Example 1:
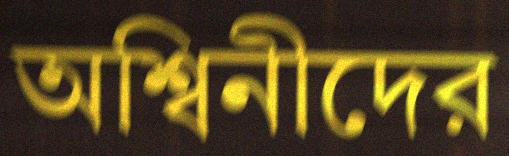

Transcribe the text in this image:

অশ্বিনীদের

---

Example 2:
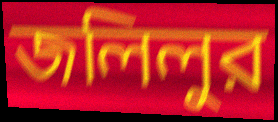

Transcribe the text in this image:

জলিলুর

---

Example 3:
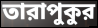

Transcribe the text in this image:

তারাপুকুর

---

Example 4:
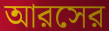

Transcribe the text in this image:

আরসের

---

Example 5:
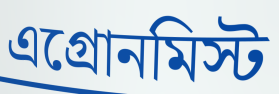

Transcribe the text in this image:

এগ্রোনমিস্ট